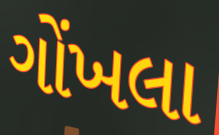
ગોંખલા